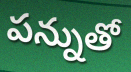
పన్నుతో